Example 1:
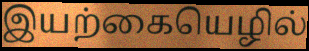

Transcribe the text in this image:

இயற்கையெழில்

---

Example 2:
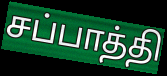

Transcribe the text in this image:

சப்பாத்தி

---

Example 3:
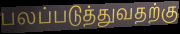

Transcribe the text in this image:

பலப்படுத்துவதற்கு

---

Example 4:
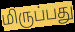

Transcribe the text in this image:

மிருப்பது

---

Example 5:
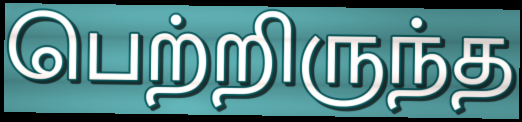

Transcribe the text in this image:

பெற்றிருந்த